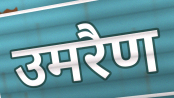
उमरैण